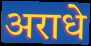
अराधे